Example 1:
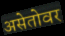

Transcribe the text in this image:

असेतोवर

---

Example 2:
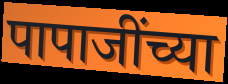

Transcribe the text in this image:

पापाजींच्या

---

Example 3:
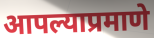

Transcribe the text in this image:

आपल्याप्रमाणे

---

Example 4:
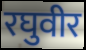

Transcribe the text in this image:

रघुवीर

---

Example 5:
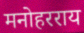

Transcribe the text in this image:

मनोहरराय